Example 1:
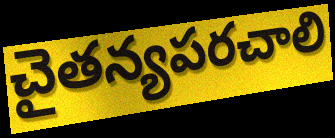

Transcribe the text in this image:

చైతన్యపరచాలి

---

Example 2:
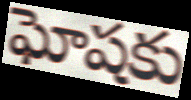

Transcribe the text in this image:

ఘోషకు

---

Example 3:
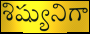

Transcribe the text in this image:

శిష్యునిగా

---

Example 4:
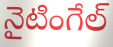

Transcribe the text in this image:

నైటింగేల్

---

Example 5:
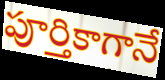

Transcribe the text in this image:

పూర్తికాగానే